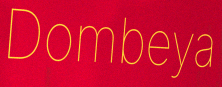
Dombeya